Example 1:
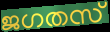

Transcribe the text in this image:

ജഗതസ്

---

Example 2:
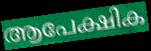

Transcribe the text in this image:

ആപേക്ഷിക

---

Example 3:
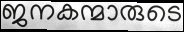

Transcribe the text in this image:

ജനകന്മാരുടെ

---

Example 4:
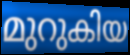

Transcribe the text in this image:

മുറുകിയ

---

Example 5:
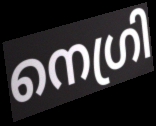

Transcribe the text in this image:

നെഗ്രി